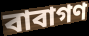
বাবাগণ